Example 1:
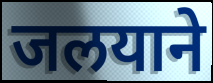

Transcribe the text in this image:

जलयाने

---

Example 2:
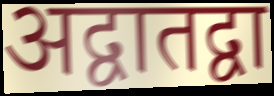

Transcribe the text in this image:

अद्वातद्वा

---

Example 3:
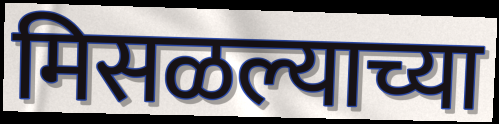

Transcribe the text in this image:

मिसळल्याच्या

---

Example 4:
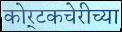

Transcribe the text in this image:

कोर्टकचेरीच्या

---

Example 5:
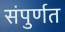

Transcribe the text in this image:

संपुर्णत